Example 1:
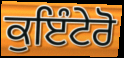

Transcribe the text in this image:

ਕੁਇੰਟੇਰੋ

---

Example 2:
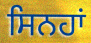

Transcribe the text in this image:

ਸਿਨਹਾਂ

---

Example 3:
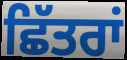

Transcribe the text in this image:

ਛਿੱਤਰਾਂ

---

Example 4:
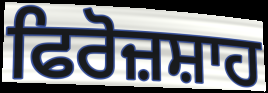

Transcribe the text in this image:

ਫਿਰੋਜ਼ਸ਼ਾਹ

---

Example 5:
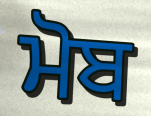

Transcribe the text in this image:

ਮੋਬ